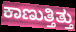
ಕಾಣುತ್ತಿತ್ತು